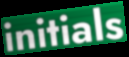
initials